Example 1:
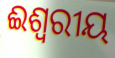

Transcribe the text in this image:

ଈଶ୍ବରୀୟ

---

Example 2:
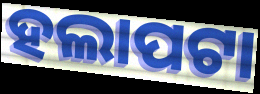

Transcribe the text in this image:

ହଲାପଟା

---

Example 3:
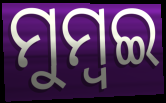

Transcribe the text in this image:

ମୁମ୍ୱଇ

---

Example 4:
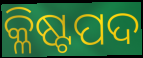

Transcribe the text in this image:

କ୍ଳିଷ୍ଟପଦ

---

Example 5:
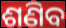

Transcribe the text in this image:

ଶଣିବ